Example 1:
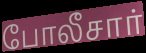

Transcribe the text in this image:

போலீசார்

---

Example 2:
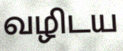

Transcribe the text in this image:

வழிடய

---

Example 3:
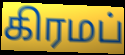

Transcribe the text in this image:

கிரமப்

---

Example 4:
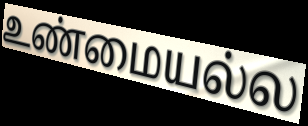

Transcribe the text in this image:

உண்மையல்ல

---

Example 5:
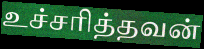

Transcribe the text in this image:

உச்சரித்தவன்